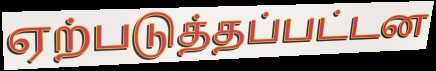
ஏற்படுத்தப்பட்டன